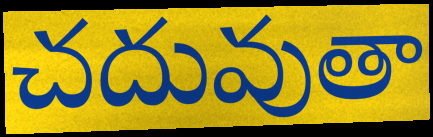
చదువుతా